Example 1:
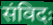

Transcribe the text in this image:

संविदः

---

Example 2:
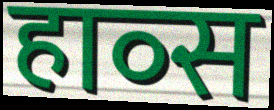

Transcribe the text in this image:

हाव्स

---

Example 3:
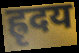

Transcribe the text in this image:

ह्रृदय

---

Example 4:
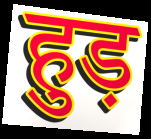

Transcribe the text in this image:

हुड़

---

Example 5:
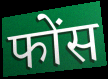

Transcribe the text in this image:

फोंस